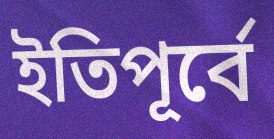
ইতিপূর্বে